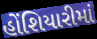
હોંશિયારીમાં